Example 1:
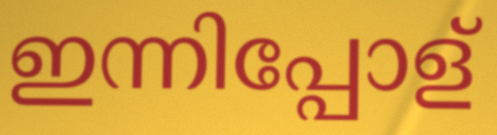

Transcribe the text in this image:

ഇന്നിപ്പോള്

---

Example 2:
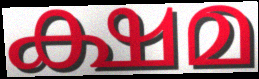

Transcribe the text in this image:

ക്ഷമ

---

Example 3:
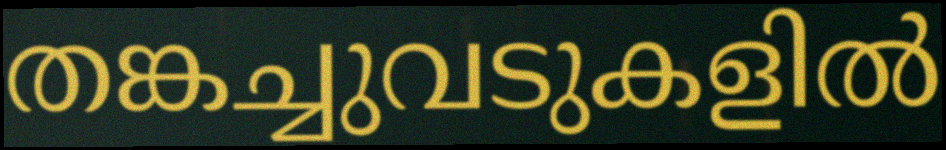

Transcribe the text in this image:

തങ്കച്ചുവടുകളിൽ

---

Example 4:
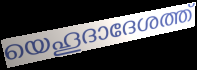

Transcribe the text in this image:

യെഹൂദാദേശത്ത്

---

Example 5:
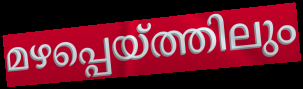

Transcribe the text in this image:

മഴപ്പെയ്ത്തിലും